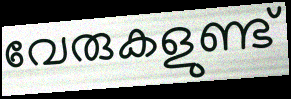
വേരുകളുണ്ട്